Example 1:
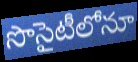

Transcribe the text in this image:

సొసైటీలోనూ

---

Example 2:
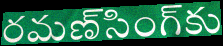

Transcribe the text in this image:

రమణ్‌సింగ్‌కు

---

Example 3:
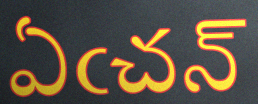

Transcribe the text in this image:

ఏఁచన్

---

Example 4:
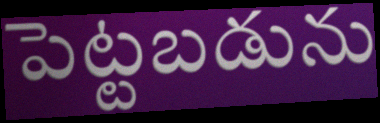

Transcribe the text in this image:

పెట్టబడును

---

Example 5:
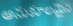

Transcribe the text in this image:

అనుకూలమైన